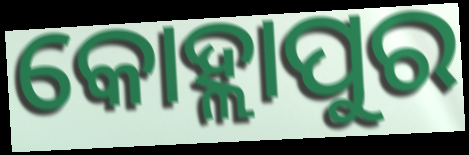
କୋହ୍ଲାପୁର